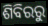
ଶିବିରରୁ